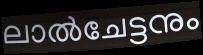
ലാൽചേട്ടനും